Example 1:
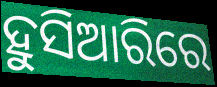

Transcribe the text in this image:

ହୁସିଆରିରେ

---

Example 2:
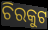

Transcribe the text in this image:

ଚିରକୁଟ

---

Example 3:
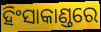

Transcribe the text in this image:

ହିଂସାକାଣ୍ଡରେ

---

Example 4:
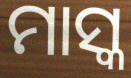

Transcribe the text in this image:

ମାସ୍କ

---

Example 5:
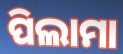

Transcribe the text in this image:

ପିଲାମା